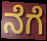
ನೆಗೆ